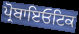
ਪ੍ਰੋਬਾਇਓਟਿਕ